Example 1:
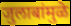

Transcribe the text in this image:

जुलाबांमुळे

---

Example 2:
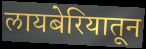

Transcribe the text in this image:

लायबेरियातून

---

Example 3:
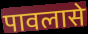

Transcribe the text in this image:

पावलासे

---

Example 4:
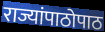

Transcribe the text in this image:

राज्यांपाठोपाठ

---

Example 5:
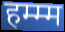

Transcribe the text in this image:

हम्म्म